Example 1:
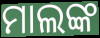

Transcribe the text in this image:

ମାଲଙ୍କ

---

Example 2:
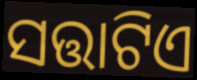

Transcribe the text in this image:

ସତ୍ତାଟିଏ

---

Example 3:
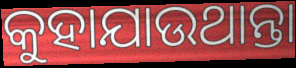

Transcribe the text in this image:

କୁହାଯାଉଥାନ୍ତା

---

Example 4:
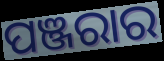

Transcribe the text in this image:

ପଞ୍ଜରାର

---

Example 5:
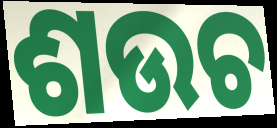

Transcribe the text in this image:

ଶଉଚ